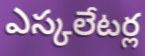
ఎస్కలేటర్ల